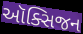
ઑક્સિજન